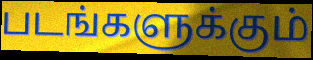
படங்களுக்கும்